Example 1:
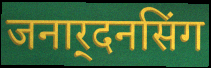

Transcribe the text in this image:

जनार्दनसिंग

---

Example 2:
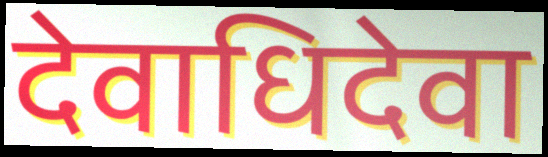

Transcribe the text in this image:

देवाधिदेवा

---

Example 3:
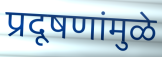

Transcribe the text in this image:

प्रदूषणांमुळे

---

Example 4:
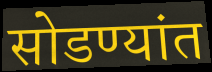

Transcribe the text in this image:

सोडण्यांत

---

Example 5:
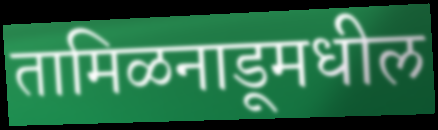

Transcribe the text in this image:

तामिळनाडूमधील